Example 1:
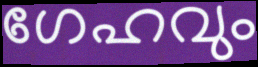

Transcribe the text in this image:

ഗേഹവും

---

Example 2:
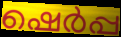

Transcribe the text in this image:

ഷെർപ്പ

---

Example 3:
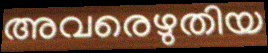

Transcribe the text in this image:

അവരെഴുതിയ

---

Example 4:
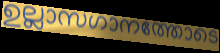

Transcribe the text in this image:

ഉല്ലാസഗാനത്തോടെ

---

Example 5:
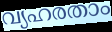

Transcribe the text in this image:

വ്യഹരതാം